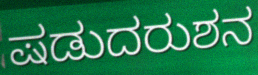
ಷಡುದರುಶನ